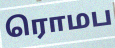
ரொமப